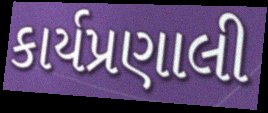
કાર્યપ્રણાલી